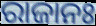
ରାଜାନଃ